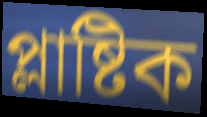
প্লাষ্টিক